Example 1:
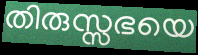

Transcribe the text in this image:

തിരുസ്സഭയെ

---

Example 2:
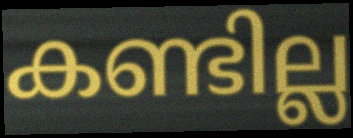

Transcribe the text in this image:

കണ്ടില്ല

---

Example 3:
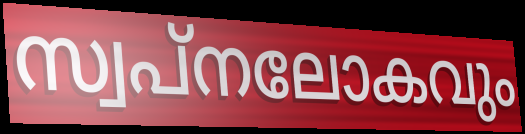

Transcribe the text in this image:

സ്വപ്നലോകവും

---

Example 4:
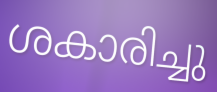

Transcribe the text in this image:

ശകാരിച്ചു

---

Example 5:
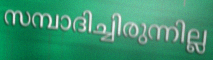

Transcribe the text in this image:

സമ്പാദിച്ചിരുന്നില്ല